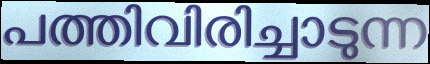
പത്തിവിരിച്ചാടുന്ന